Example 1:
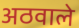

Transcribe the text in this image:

अठवाले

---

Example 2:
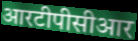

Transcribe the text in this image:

आरटीपीसीआर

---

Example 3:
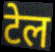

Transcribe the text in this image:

टेल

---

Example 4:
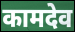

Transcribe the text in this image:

कामदेव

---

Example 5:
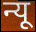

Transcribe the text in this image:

न्यू